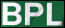
BPL